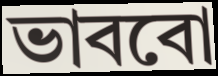
ভাববো